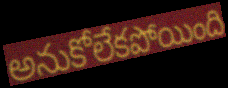
అనుకోలేకపోయింది